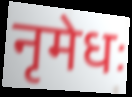
नृमेधः